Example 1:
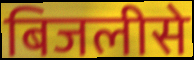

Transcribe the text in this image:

बिजलीसे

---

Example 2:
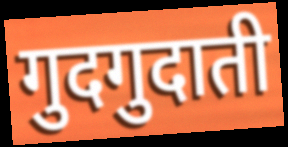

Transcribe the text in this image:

गुदगुदाती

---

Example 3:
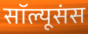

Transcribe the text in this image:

सॉल्यूसंस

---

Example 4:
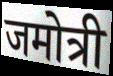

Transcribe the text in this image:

जमोत्री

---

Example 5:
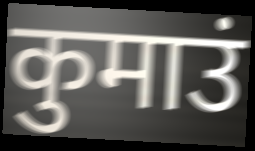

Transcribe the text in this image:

कुमाउं